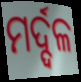
ମର୍ଦ୍ଦଳ